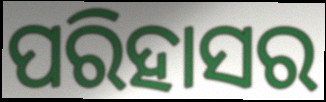
ପରିହାସର